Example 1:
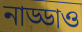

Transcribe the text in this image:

নাড্ডাও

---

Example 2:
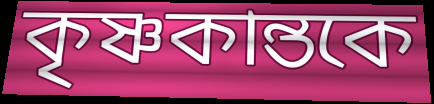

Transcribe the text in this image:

কৃষ্ণকান্তকে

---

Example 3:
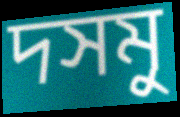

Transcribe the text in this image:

দসমু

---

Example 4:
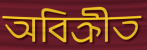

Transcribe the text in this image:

অবিক্রীত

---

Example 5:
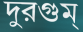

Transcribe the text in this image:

দুরগুম্